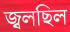
জ্বলছিল